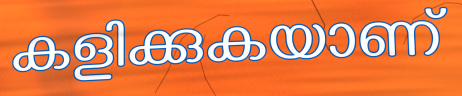
കളിക്കുകയാണ്